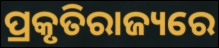
ପ୍ରକୃତିରାଜ୍ୟରେ